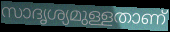
സാദൃശ്യമുള്ളതാണ്